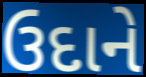
ઉદાને